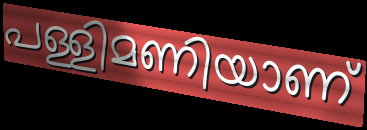
പള്ളിമണിയാണ്